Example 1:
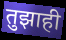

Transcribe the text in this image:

तुझाही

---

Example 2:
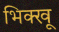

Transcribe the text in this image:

भिक्खू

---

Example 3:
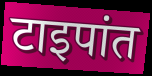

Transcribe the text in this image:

टाइपांत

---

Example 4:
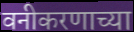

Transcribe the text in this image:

वनीकरणाच्या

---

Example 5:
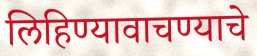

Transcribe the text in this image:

लिहिण्यावाचण्याचे